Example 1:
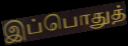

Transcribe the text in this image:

இப்பொதுத்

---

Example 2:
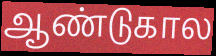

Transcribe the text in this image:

ஆண்டுகால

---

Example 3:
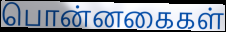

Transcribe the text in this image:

பொன்னகைகள்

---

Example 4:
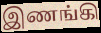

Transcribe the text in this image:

இணங்கி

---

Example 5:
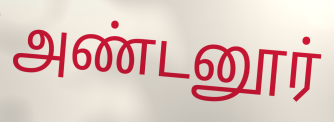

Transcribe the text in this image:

அண்டனூர்